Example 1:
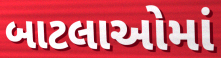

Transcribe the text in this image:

બાટલાઓમાં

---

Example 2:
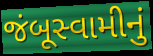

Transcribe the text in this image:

જંબૂસ્વામીનું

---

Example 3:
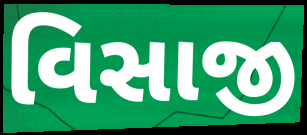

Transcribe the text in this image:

વિસાજી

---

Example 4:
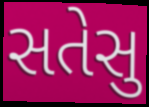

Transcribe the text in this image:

સતેસુ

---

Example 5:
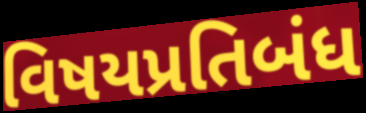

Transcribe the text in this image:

વિષયપ્રતિબંધ